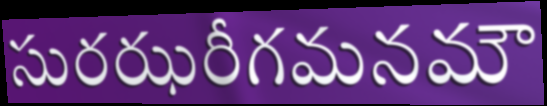
సురఝరీగమనమౌ